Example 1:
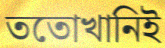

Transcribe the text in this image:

ততোখানিই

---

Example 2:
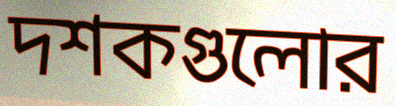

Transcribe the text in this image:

দশকগুলোর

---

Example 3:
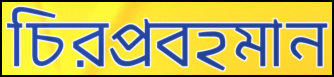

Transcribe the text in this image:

চিরপ্রবহমান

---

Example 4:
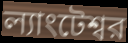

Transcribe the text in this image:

ল্যাংটেশ্বর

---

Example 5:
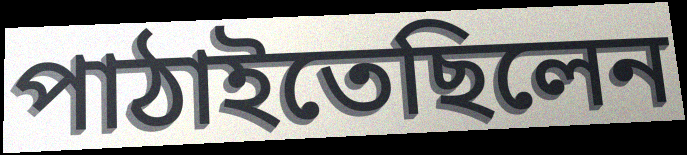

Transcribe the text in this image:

পাঠাইতেছিলেন